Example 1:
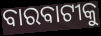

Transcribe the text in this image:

ବାରବାଟୀକୁ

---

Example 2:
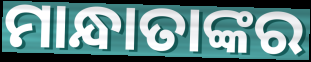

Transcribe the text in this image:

ମାନ୍ଧାତାଙ୍କର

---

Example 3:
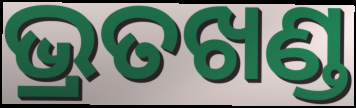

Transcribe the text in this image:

ଭ୍ରତଖଣ୍ଡ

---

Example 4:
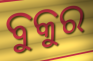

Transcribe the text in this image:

ବୁକୁର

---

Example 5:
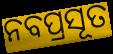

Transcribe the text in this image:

ନବପ୍ରସୂତ